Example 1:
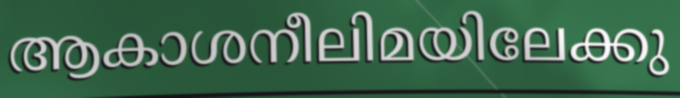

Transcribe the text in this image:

ആകാശനീലിമയിലേക്കു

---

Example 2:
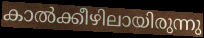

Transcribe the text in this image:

കാൽക്കീഴിലായിരുന്നു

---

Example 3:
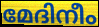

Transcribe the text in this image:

മേദിനീം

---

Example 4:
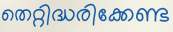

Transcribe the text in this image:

തെറ്റിദ്ധരിക്കേണ്ട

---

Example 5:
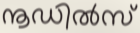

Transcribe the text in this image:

നൂഡിൽസ്